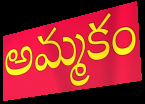
అమ్మకం